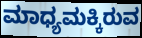
ಮಾಧ್ಯಮಕ್ಕಿರುವ